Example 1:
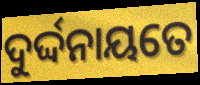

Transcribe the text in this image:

ଦୁର୍ଦ୍ଦନାୟତେ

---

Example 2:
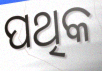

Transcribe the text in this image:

ପଥିକ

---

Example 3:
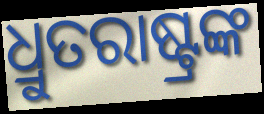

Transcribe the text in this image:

ଧ୍ରୁତରାଷ୍ଟ୍ରଙ୍କ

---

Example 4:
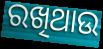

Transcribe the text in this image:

ରଖିଥାଉ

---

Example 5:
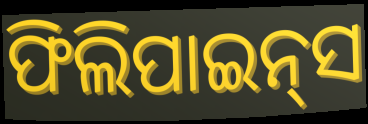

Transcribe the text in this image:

ଫିଲିପାଇନ୍‍ସ